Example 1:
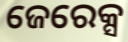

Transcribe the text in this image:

ଜେରେକ୍ସ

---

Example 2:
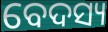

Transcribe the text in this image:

ବେଦସ୍ୟ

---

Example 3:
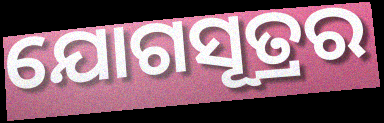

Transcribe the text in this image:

ଯୋଗସୂତ୍ରର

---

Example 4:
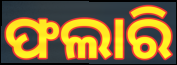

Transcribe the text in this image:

ଫଲାରି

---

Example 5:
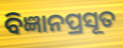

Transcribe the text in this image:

ବିଜ୍ଞାନପ୍ରସୂତ